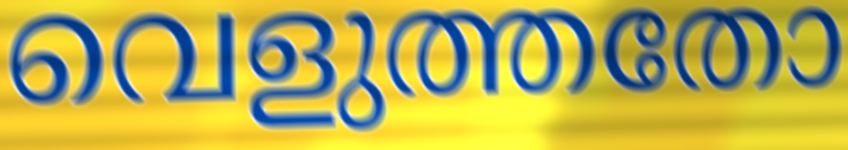
വെളുത്തതോ